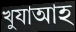
খুযাআহ